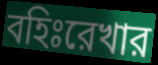
বহিঃরেখার